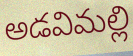
అడవిమల్లి